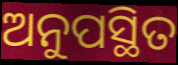
ଅନୁପସ୍ଥିତ